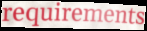
requirements